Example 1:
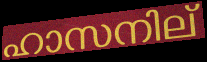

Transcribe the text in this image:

ഹാസനില്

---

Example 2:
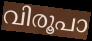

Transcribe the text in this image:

വിരൂപാ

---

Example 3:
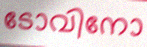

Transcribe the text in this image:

ടോവിനോ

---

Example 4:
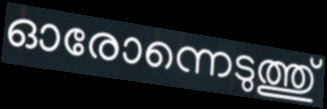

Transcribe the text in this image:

ഓരോന്നെടുത്തു്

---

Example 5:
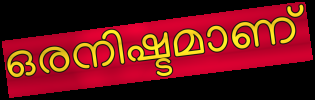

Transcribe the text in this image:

ഒരനിഷ്ടമാണ്